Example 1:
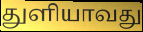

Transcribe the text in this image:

துளியாவது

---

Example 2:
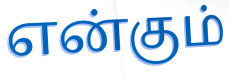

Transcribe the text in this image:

என்கும்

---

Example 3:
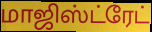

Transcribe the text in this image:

மாஜிஸ்ட்ரேட்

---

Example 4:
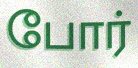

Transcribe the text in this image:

போர்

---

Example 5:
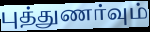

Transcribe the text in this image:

புத்துணர்வும்